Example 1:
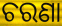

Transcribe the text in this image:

ଚରଣା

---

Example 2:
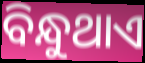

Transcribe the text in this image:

ବିନ୍ଧୁଥାଏ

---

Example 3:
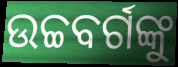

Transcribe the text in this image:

ଉଚ୍ଚବର୍ଗଙ୍କୁ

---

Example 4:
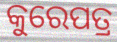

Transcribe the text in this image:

କୁରେପତ୍ର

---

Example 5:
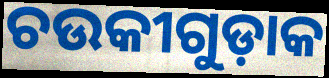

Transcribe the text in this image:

ଚଉକୀଗୁଡ଼ାକ